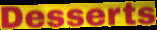
Desserts